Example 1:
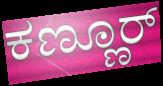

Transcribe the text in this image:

ಕಣ್ಣೂರ್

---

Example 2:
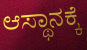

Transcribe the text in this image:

ಆಸ್ಥಾನಕ್ಕೆ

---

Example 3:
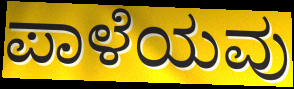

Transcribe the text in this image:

ಪಾಳೆಯವು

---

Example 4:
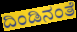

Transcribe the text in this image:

ದಿಂಡಿನಂತೆ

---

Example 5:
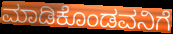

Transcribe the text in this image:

ಮಾಡಿಕೊಂಡವನಿಗೆ